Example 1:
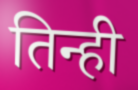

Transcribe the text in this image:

तिन्ही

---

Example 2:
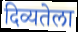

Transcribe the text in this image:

दिव्यतेला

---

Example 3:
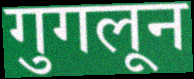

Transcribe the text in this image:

गुगलून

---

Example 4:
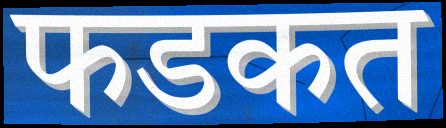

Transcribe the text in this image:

फडकत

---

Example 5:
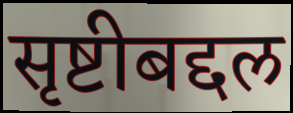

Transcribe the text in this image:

सृष्टीबद्दल